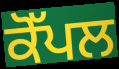
ਕੋੱਪਲ